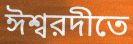
ঈশ্বরদীতে